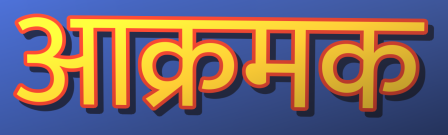
आक्रमक